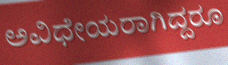
ಅವಿಧೇಯರಾಗಿದ್ದರೂ